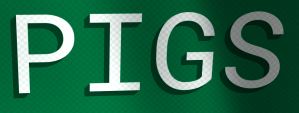
PIGS